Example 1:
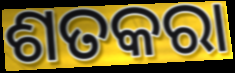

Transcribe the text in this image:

ଶତକରା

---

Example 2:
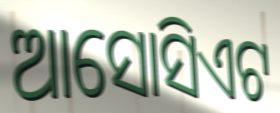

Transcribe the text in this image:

ଆସୋସିଏଟ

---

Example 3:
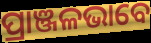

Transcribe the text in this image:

ପ୍ରାଞ୍ଜଳଭାବେ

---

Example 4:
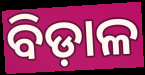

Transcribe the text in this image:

ବିଡ଼ାଳ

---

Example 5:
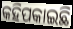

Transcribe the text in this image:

କହିପକାଇଛି